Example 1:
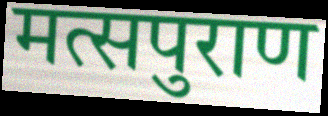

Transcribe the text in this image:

मत्सपुराण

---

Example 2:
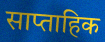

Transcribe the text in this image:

साप्ताहिक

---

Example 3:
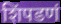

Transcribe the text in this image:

शिंपडणं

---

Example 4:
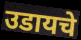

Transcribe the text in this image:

उडायचे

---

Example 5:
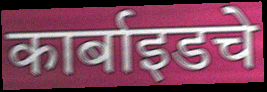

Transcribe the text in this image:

कार्बाइडचे